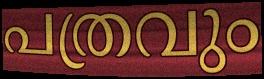
പത്രവും